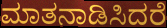
ಮಾತನಾಡಿಸಿದರೆ